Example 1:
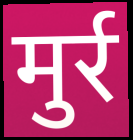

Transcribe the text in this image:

मुर्र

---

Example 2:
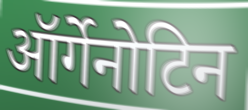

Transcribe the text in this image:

ऑर्गेनोटिन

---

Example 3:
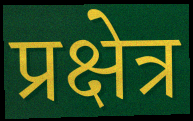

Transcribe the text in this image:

प्रक्षेत्र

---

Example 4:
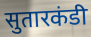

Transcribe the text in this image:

सुतारकंडी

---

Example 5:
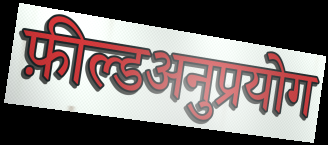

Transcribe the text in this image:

फ़ील्डअनुप्रयोग